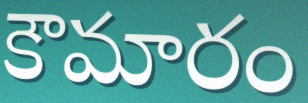
కౌమారం